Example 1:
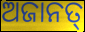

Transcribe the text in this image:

ଅଜାନତ୍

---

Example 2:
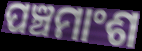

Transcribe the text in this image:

ପଞ୍ଚମାଂଶ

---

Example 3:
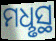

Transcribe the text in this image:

ମଧୢସ୍ଥ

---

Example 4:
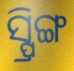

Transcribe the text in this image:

ସ୍ପ୍ରିଙ୍ଗ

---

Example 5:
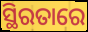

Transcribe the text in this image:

ସ୍ଥିରତାରେ